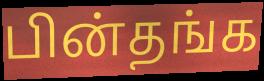
பின்தங்க